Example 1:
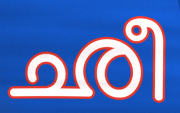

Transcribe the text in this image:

ഛീ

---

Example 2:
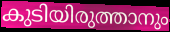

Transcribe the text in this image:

കുടിയിരുത്താനും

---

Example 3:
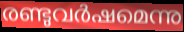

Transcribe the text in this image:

രണ്ടുവർഷമെന്നു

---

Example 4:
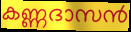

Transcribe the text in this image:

കണ്ണദാസൻ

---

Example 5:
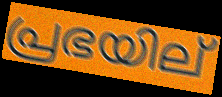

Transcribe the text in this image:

പ്രഭയില്